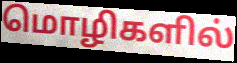
மொழிகளில்